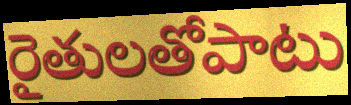
రైతులతోపాటు